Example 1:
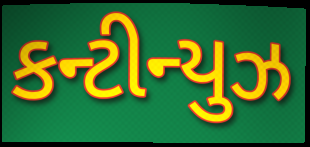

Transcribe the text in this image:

કન્ટીન્યુઝ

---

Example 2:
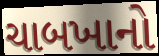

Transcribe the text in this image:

ચાબખાનો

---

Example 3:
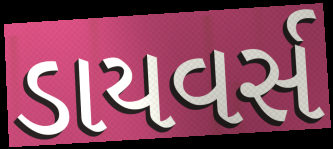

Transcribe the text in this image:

ડાયવર્સ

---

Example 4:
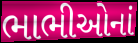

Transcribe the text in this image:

ભાભીઓનાં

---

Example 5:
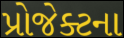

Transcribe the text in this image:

પ્રોજેક્ટના